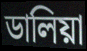
ডালিয়া